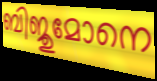
ബിജുമോനെ